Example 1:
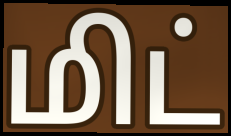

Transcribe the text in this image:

மிட்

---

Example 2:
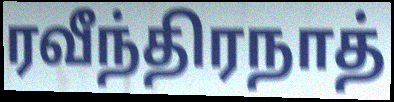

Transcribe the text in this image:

ரவீந்திரநாத்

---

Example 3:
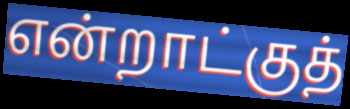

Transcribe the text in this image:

என்றாட்குத்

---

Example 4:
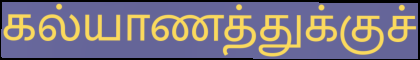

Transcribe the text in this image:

கல்யாணத்துக்குச்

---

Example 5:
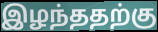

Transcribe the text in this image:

இழந்ததற்கு